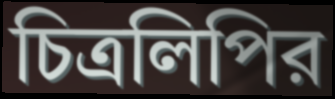
চিত্রলিপির